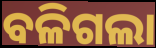
ବଳିଗଲା